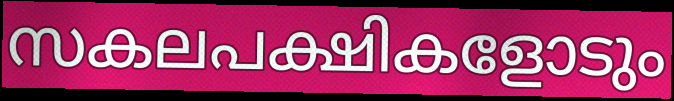
സകലപക്ഷികളോടും